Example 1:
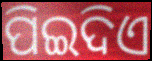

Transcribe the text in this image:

ପିଇଦିଏ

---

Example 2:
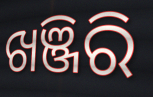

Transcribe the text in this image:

ଖଞ୍ଜିରି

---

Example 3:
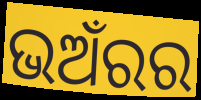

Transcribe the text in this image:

ଭଅଁରର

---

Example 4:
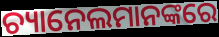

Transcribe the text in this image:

ଚ୍ୟାନେଲମାନଙ୍କରେ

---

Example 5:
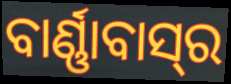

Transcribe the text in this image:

ବାର୍ଣ୍ଣାବାସ୍‌ର